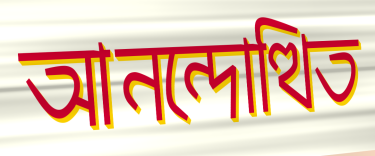
আনন্দোত্থিত